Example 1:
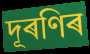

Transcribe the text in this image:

দূৰণিৰ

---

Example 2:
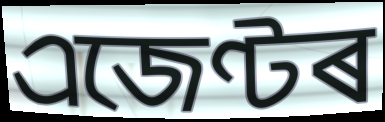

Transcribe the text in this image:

এজেণ্টৰ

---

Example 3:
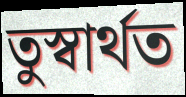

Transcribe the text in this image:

তুস্বাৰ্থত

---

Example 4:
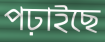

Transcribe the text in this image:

পঢ়াইছে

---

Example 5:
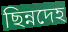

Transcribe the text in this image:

ছিন্নদেহ